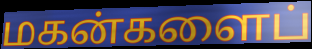
மகன்களைப்